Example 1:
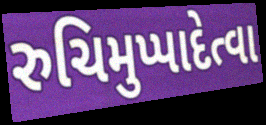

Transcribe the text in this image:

રુચિમુપ્પાદેત્વા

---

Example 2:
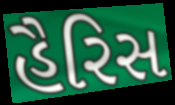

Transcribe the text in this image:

હૈરિસ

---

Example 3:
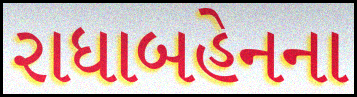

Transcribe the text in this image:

રાધાબહેનના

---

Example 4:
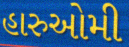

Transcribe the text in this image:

હારુઓમી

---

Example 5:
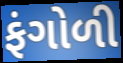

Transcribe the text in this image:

ફંગોળી